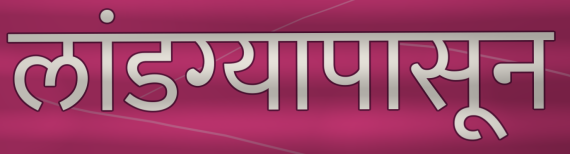
लांडग्यापासून